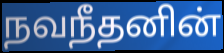
நவநீதனின்